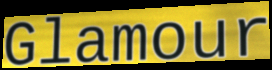
Glamour